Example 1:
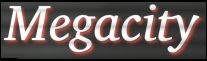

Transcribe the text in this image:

Megacity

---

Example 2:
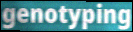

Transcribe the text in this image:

genotyping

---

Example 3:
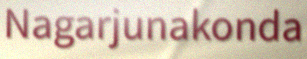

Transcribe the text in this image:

Nagarjunakonda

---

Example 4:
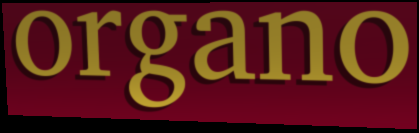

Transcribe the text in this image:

organo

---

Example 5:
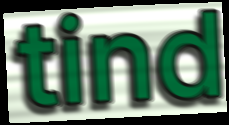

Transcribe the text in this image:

tind